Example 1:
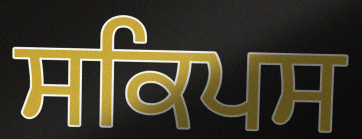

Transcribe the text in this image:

ਸਕਿਪਸ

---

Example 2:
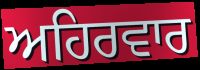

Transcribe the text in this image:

ਅਹਿਰਵਾਰ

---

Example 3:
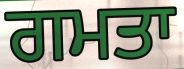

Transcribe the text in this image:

ਗਮਤਾ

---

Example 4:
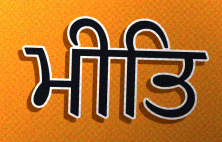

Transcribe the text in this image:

ਮੀਤਿ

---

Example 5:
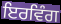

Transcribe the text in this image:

ਇਰਵਿੰਗ